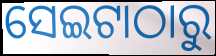
ସେଇଟାଠାରୁ